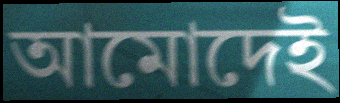
আমোদেই